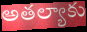
అతల్యాకు